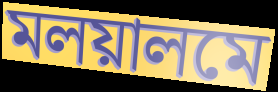
মলয়ালমে